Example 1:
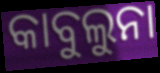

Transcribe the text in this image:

କାବୁଲୁନା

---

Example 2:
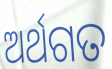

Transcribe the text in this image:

ଅର୍ଥଗତ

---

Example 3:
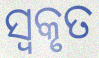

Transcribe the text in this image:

ସ୍ୱକୃତ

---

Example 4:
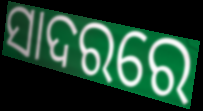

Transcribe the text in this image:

ସାଦରରେ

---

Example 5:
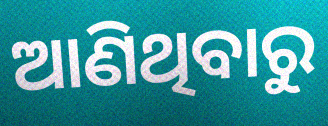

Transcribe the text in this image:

ଆଣିଥିବାରୁ